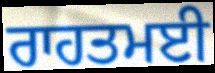
ਰਾਹਤਮਈ